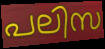
പലിസ